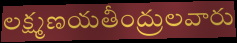
లక్ష్మణయతీంద్రులవారు